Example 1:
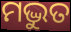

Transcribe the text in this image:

ମଦ୍ଭୁତ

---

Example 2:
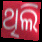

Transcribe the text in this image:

ଥିଲି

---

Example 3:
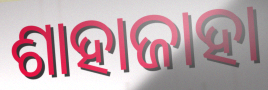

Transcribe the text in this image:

ଶାହାଜାହା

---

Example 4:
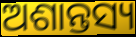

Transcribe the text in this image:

ଅଶାନ୍ତସ୍ୟ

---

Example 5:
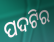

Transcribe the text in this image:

ପଦଟିର